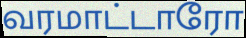
வரமாட்டாரோ